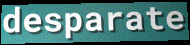
desparate